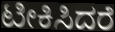
ಟೀಕಿಸಿದರೆ